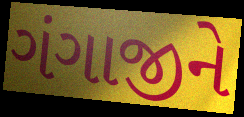
ગંગાજીને